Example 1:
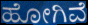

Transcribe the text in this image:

ಹೋಗಿವೆ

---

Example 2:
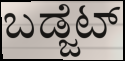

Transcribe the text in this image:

ಬಡ್ಜೆಟ್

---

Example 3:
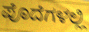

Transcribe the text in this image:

ಪೊದೆಗಳಲ್ಲಿ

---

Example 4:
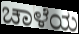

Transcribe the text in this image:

ಚಾಳೆಯ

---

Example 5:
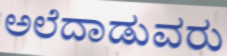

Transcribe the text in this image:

ಅಲೆದಾಡುವರು